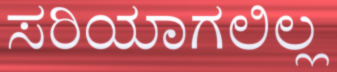
ಸರಿಯಾಗಲಿಲ್ಲ